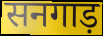
सनगाड़